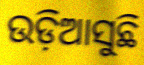
ଉଡ଼ିଆସୁଛି